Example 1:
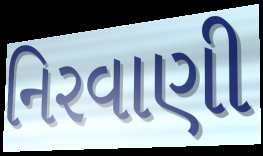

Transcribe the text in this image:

નિરવાણી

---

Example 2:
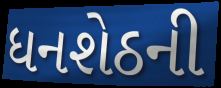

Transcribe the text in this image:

ધનશેઠની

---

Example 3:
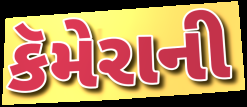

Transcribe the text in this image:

કૅમેરાની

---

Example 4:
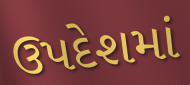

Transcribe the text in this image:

ઉપદેશમાં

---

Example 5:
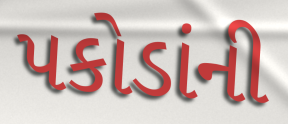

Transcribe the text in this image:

પકોડાંની